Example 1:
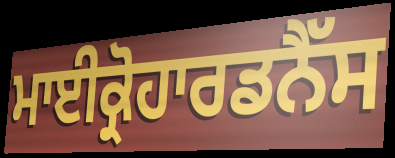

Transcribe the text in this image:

ਮਾਈਕ੍ਰੋਹਾਰਡਨੈੱਸ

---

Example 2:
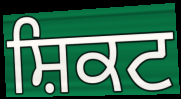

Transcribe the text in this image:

ਸ਼ਿਕਟ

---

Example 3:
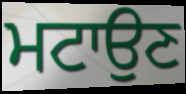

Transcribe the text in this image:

ਮਟਾਉਣ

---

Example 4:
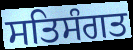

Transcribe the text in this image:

ਸਤਿਸੰਗਤ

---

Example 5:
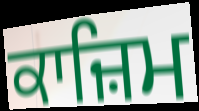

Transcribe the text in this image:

ਕਾਜ਼ਿਮ